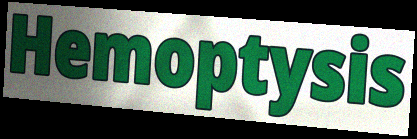
Hemoptysis